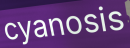
cyanosis